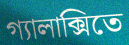
গ্যালাক্সিতে